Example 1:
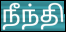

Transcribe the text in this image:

நீந்தி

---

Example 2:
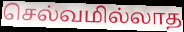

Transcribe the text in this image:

செல்வமில்லாத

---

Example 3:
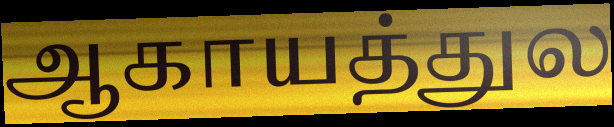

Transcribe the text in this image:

ஆகாயத்துல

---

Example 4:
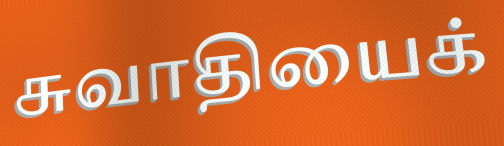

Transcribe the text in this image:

சுவாதியைக்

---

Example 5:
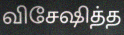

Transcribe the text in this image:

விசேஷித்த